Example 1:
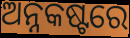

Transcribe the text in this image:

ଅନ୍ନକଷ୍ଟରେ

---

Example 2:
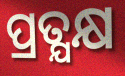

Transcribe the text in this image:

ପ୍ରତ୍ଯକ୍ଷ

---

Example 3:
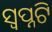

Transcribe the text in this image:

ସ୍ୱପ୍ନଟି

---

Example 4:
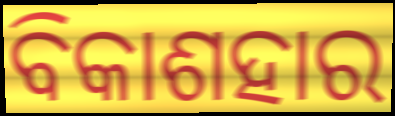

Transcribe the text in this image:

ବିକାଶହାର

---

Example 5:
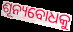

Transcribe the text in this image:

ଶୂନ୍ୟବୋଧକୁ